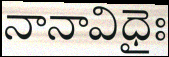
నానావిధైః